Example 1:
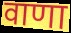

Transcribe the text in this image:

वाणा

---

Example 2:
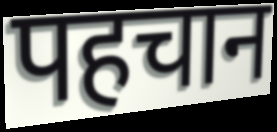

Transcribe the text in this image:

पहचान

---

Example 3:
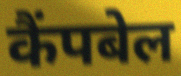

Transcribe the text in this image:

कैंपबेल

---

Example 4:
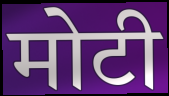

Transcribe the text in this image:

मोटी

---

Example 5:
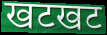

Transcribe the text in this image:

खटखट